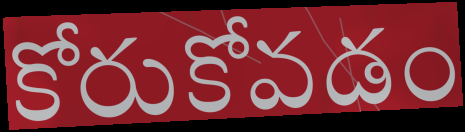
కోరుకోవడం